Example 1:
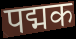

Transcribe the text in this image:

पद्मक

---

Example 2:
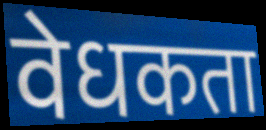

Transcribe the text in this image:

वेधकता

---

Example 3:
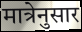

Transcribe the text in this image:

मात्रेनुसार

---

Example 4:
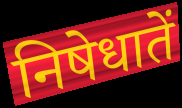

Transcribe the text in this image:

निषेधातें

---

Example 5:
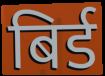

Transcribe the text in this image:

बिर्ड